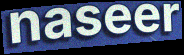
naseer